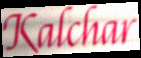
Kalchar